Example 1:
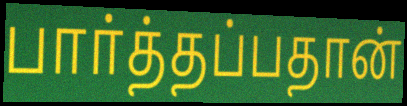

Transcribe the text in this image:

பார்த்தப்பதான்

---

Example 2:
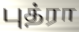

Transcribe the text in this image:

புத்ரா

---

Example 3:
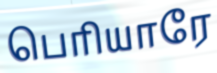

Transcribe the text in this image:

பெரியாரே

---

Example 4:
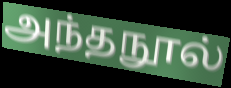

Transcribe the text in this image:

அந்தநூல்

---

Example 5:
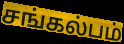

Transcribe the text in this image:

சங்கல்பம்